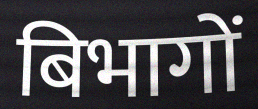
बिभागों